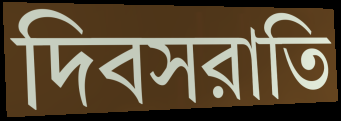
দিবসরাতি